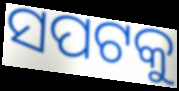
ସପଟକୁ